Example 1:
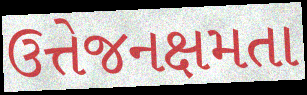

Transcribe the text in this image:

ઉત્તેજનક્ષમતા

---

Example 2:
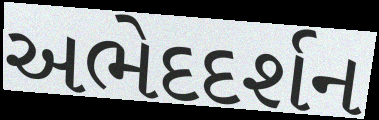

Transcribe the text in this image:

અભેદદર્શન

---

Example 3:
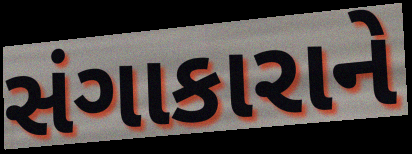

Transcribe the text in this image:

સંગાકારાને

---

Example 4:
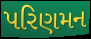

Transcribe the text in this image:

પરિણમન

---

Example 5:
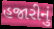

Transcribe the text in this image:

હજારીનું